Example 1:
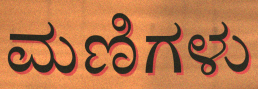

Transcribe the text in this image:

ಮಣಿಗಳು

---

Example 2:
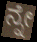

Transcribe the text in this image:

ನ್ನೇ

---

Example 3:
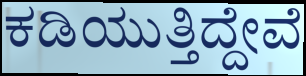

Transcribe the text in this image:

ಕಡಿಯುತ್ತಿದ್ದೇವೆ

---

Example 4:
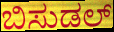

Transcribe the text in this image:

ಬಿಸುಡಲ್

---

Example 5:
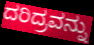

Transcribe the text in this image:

ದರಿದ್ರವನ್ನು